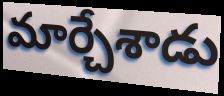
మార్చేశాడు